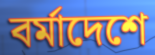
বর্মাদেশে